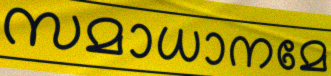
സമാധാനമേ